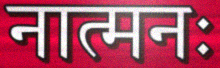
नात्मनः